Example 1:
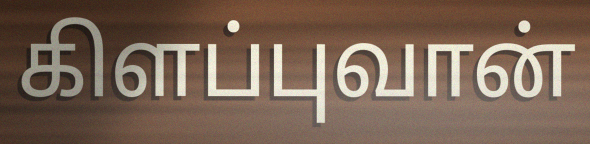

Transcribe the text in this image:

கிளப்புவான்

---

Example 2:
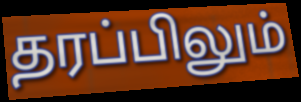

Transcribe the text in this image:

தரப்பிலும்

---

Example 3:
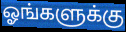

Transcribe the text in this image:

ஓங்களுக்கு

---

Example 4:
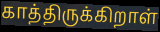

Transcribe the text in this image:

காத்திருக்கிறாள்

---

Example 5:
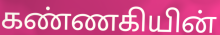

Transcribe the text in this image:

கண்ணகியின்